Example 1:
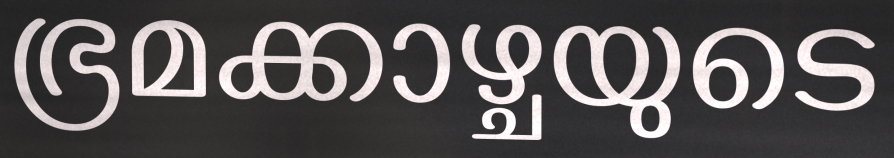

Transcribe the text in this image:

ഭ്രമക്കാഴ്ചയുടെ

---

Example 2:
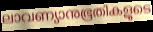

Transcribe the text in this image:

ലാവണ്യാനുഭൂതികളുടെ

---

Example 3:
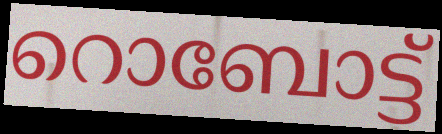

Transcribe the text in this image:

റൊബോട്ട്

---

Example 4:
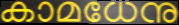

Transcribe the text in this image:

കാമധേനു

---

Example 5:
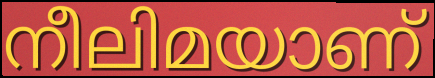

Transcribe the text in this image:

നീലിമയാണ്